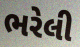
ભરેલી